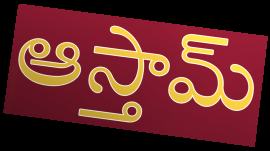
ఆస్తామ్